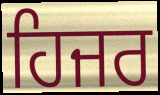
ਹਿਜਰ